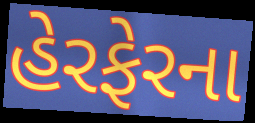
હેરફેરના